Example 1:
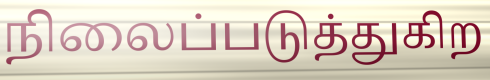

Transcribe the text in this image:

நிலைப்படுத்துகிற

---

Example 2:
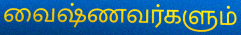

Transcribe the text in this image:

வைஷ்ணவர்களும்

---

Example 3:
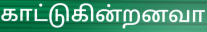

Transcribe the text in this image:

காட்டுகின்றனவா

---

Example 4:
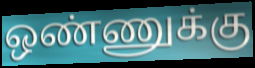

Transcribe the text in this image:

ஒண்ணுக்கு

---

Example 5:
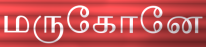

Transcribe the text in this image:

மருகோனே